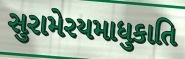
સુરામેરયમાધુકાતિ